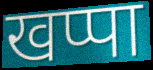
खप्पा